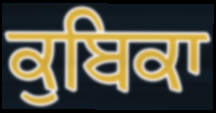
ਕੁਬਿਕਾ